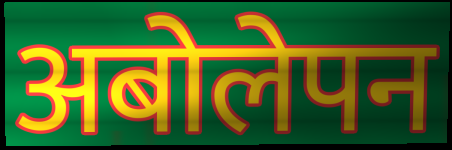
अबोलेपन